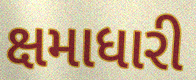
ક્ષમાધારી